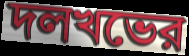
দলখভের